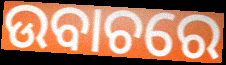
ଉବାଚରେ